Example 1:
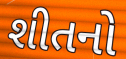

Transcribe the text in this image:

શીતનો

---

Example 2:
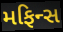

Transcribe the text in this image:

મફિન્સ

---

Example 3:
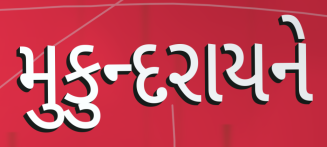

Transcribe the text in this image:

મુકુન્દરાયને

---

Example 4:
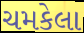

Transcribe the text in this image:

ચમકેલા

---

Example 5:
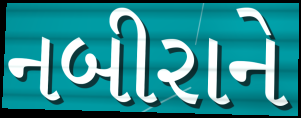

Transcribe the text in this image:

નબીરાને